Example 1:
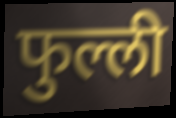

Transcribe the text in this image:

फुल्ली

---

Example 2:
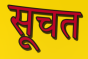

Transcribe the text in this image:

सूचत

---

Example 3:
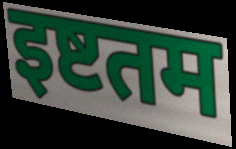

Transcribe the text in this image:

इष्टतम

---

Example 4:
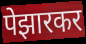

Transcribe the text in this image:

पेझारकर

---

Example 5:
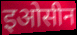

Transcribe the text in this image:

इओसीन